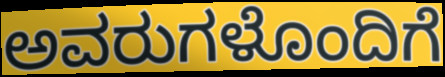
ಅವರುಗಳೊಂದಿಗೆ